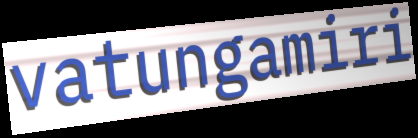
vatungamiri